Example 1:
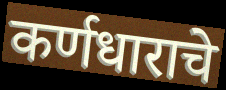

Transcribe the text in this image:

कर्णधाराचे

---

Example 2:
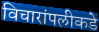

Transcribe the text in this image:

विचारांपलीकडे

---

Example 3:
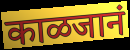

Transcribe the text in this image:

काळजानं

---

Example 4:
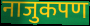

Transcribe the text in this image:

नाजुकपण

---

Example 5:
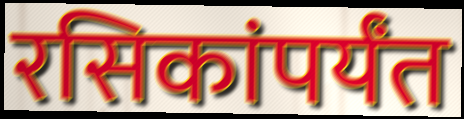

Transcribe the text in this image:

रसिकांपर्यंत